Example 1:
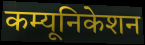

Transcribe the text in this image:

कम्यूनिकेशन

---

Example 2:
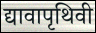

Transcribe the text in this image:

द्यावापृथिवी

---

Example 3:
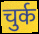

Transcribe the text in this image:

चुर्क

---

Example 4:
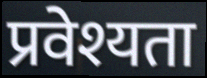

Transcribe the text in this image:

प्रवेश्यता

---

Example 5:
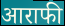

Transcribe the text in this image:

आराफी